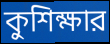
কুশিক্ষার